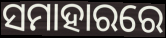
ସମାହାରରେ